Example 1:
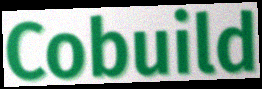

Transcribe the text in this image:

Cobuild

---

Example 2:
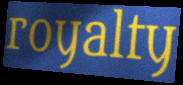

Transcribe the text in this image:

royalty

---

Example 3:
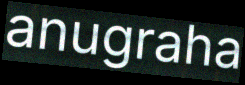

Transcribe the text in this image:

anugraha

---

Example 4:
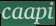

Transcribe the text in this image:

caapi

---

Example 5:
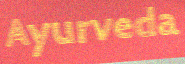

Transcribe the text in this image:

Ayurveda